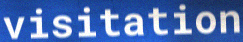
visitation